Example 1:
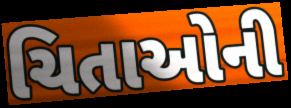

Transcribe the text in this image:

ચિતાઓની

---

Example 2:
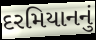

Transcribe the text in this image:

દરમિયાનનું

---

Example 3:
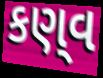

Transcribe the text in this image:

કણ્‌વ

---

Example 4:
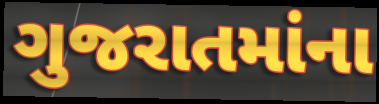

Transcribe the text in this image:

ગુજરાતમાંના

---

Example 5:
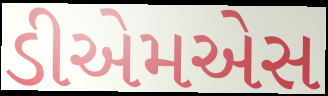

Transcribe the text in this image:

ડીએમએસ